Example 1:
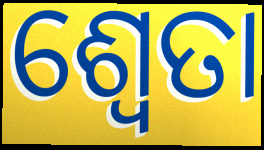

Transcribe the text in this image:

ଶ୍ୱେତା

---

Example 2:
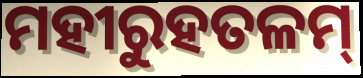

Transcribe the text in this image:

ମହୀରୁହତଳମ୍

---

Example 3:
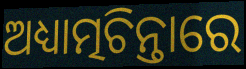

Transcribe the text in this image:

ଅଧ୍ୟାତ୍ମଚିନ୍ତାରେ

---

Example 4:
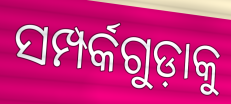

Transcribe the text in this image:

ସମ୍ପର୍କଗୁଡ଼ାକୁ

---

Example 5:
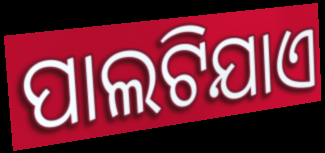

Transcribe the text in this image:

ପାଲଟିଯାଏ